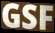
GSF